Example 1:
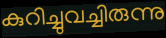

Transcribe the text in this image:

കുറിച്ചുവച്ചിരുന്നു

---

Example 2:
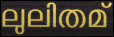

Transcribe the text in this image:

ലുലിതമ്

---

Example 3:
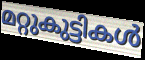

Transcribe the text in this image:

മറ്റുകുട്ടികൾ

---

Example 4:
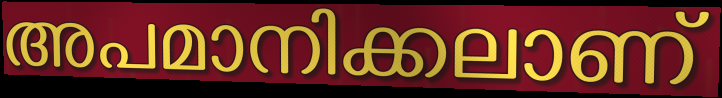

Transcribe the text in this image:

അപമാനിക്കലാണ്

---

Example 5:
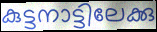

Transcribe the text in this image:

കുട്ടനാട്ടിലേക്കു